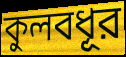
কুলবধূর